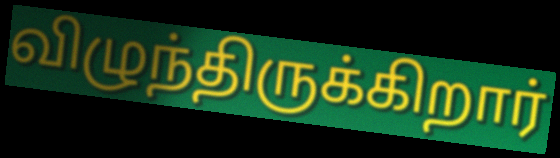
விழுந்திருக்கிறார்